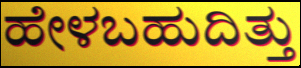
ಹೇಳಬಹುದಿತ್ತು